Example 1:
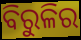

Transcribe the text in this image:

ବିରୁଳିର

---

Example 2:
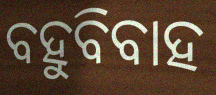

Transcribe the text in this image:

ବହୁବିବାହ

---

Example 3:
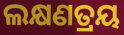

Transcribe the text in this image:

ଲକ୍ଷଣତ୍ରୟ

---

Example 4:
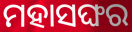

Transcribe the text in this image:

ମହାସଙ୍ଘର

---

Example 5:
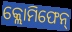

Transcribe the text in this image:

କ୍ଲୋମିଫେନ୍